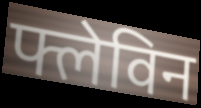
फ्लेविन